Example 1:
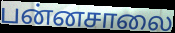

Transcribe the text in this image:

பன்னசாலை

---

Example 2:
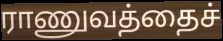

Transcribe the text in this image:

ராணுவத்தைச்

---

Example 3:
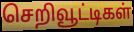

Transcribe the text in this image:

செறிவூட்டிகள்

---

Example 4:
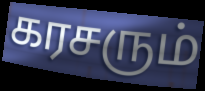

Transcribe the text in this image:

கரசரும்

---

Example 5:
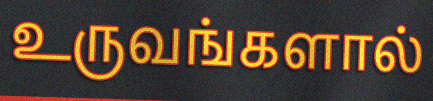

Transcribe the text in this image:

உருவங்களால்